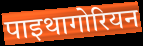
पाइथागोरियन